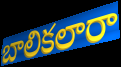
బాలికలారా